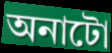
অনাটো